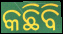
କଛିବି